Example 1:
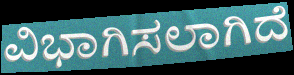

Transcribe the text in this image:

ವಿಭಾಗಿಸಲಾಗಿದೆ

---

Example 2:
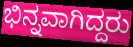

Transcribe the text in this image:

ಭಿನ್ನವಾಗಿದ್ದರು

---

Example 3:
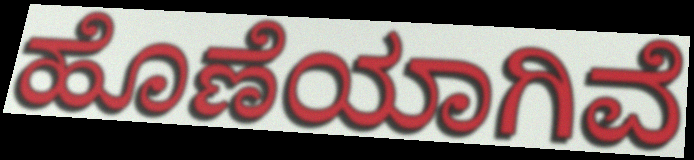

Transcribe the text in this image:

ಹೊಣೆಯಾಗಿವೆ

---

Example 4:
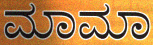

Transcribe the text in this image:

ಮಾಮಾ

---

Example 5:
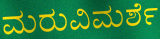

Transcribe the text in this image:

ಮರುವಿಮರ್ಶೆ